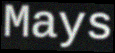
Mays